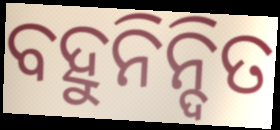
ବହୁନିନ୍ଦିତ